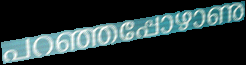
പറഞ്ഞപ്പോഴാണു